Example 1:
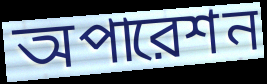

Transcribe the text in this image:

অপারেশন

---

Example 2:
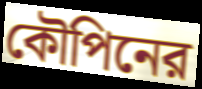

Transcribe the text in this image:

কৌপিনের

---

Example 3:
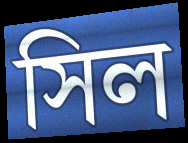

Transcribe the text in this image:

সিল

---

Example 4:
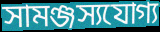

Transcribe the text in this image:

সামঞ্জস্যযোগ্য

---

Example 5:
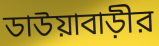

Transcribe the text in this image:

ডাউয়াবাড়ীর